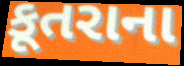
કૂતરાના